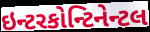
ઇન્ટરકોન્ટિનેન્ટલ